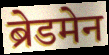
ब्रेडमेन